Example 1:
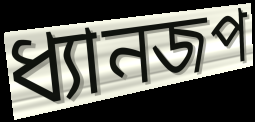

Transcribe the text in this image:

ধ্যানজপ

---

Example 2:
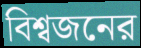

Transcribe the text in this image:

বিশ্বজনের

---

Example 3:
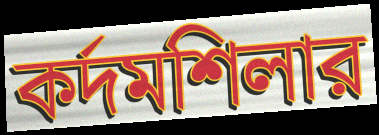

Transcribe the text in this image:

কর্দমশিলার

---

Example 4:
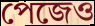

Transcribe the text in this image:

পেজেও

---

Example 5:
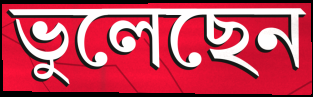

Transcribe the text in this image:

ভুলেছেন